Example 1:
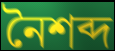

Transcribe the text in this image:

নৈশব্দ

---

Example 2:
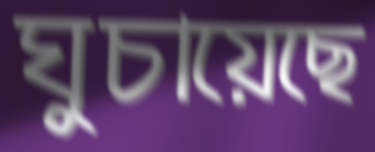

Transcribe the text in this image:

ঘুচায়েছে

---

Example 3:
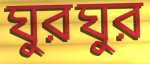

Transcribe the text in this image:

ঘুরঘুর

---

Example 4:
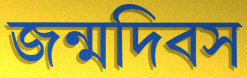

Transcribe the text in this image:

জন্মদিবস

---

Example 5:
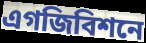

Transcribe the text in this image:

এগজিবিশনে